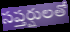
సప్తర్షులతో